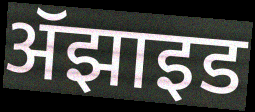
ॲझाइड